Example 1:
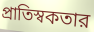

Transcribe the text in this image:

প্রাতিস্বকতার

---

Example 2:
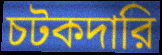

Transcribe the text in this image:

চটকদারি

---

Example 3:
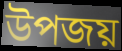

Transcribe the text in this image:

উপজয়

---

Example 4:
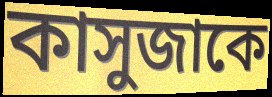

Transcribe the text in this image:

কাসুজাকে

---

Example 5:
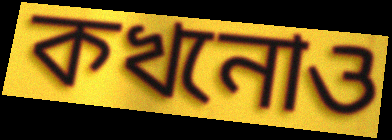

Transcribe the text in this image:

কখনোও